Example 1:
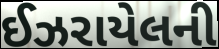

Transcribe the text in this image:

ઈઝરાયેલની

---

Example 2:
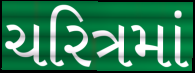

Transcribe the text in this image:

ચરિત્રમાં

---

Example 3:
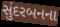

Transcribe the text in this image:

સુંદરબનના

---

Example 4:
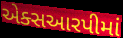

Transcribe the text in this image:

એક્સઆરપીમાં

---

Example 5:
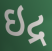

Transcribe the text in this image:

ઇદ્ર